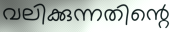
വലിക്കുന്നതിന്റെ